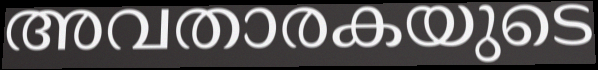
അവതാരകയുടെ